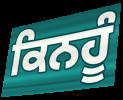
ਕਿਨਹੂੰ